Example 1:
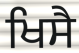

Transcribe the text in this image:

ਖਿਸੈ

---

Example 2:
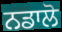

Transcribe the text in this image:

ਨਡਾਲੋ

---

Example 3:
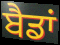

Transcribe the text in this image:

ਬੈਡਾਂ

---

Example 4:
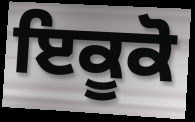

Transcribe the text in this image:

ਇਕੂਕੋ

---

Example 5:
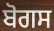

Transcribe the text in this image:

ਬੋਗਸ